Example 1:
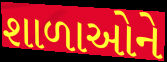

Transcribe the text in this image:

શાળાઓને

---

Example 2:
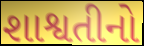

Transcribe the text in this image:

શાશ્વતીનો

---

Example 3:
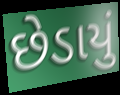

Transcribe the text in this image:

છેડાયું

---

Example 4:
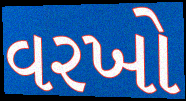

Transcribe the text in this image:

વરખો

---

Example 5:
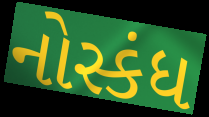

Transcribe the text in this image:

નોસ્કંધ